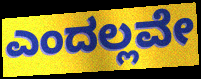
ಎಂದಲ್ಲವೇ